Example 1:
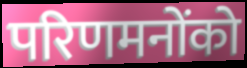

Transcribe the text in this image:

परिणमनोंको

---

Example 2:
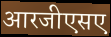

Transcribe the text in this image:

आरजीएसए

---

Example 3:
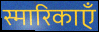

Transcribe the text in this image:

स्मारिकाएँ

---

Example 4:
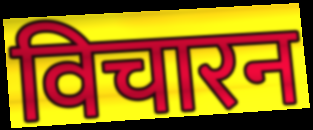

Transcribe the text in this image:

विचारन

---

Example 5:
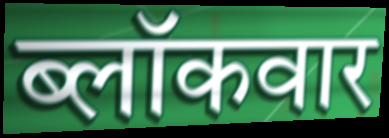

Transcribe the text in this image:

ब्लॉकवार